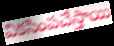
వికసింపచేస్తాయి